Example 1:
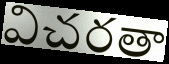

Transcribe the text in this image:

విచరతా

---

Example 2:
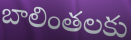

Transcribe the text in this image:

బాలింతలకు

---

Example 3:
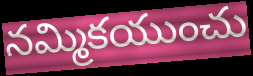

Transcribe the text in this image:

నమ్మికయుంచు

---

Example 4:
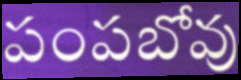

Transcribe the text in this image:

పంపబోవు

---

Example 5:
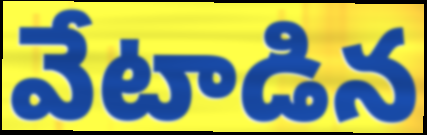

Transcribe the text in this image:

వేటాడిన